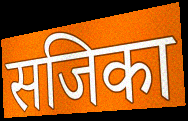
सजिका